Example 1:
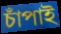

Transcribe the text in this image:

চাঁপাই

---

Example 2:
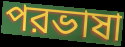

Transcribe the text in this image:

পরভাষা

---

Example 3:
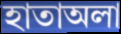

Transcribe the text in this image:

হাতাঅলা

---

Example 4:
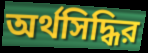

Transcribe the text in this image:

অর্থসিদ্ধির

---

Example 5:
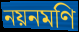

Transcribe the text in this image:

নয়নমণি